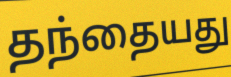
தந்தையது